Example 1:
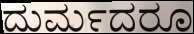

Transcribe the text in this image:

ದುರ್ಮದರೂ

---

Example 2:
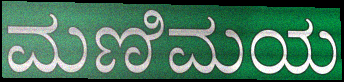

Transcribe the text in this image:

ಮಣಿಮಯ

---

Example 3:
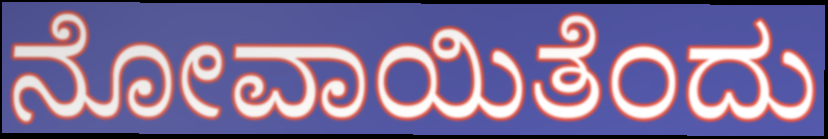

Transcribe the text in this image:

ನೋವಾಯಿತೆಂದು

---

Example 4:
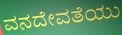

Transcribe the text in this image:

ವನದೇವತೆಯು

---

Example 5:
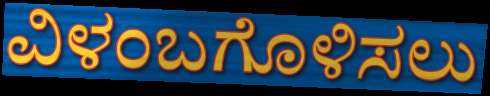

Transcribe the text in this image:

ವಿಳಂಬಗೊಳಿಸಲು